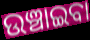
ଉଞ୍ଚାଇବା